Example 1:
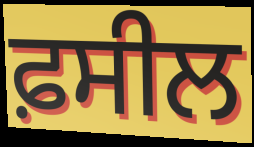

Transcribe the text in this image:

ਫ਼ਸੀਲ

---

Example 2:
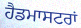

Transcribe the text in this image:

ਹੈਡਮਾਸਟਰਾਂ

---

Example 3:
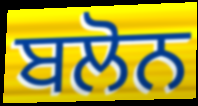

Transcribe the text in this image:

ਬਲੋਨ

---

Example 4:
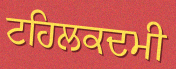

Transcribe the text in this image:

ਟਹਿਲਕਦਮੀ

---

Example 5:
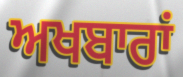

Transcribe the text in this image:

ਅਖਬਾਰਾਂ